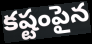
కష్టంపైన